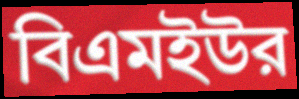
বিএমইউর